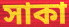
সাকা